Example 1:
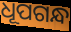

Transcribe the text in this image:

ଧୂପଗନ୍ଧ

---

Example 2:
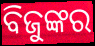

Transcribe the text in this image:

ବିଜୁଙ୍କର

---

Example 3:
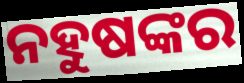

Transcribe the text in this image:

ନହୁଷଙ୍କର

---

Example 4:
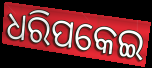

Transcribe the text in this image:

ଧରିପକେଇ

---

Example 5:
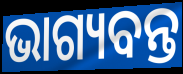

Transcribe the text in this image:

ଭାଗ୍ୟବନ୍ତ